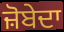
ਜ਼ੋਬੇਦਾ